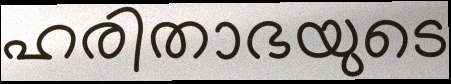
ഹരിതാഭയുടെ